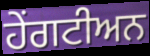
ਹੇਂਗਟੀਅਨ